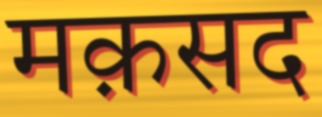
मक़सद